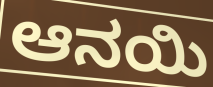
ಆನಯಿ